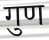
गुण